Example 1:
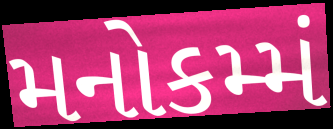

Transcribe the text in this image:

મનોકમ્મં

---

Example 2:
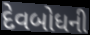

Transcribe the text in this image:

દેવબોધની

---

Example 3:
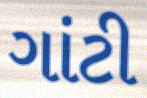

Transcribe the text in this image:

ગાંટી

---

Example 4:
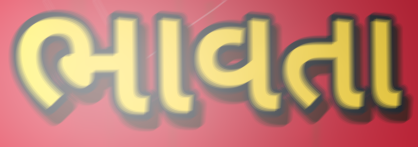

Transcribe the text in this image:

ભાવતા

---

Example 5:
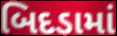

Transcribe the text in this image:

બિદડામાં